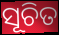
ସୂଚିତ